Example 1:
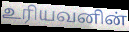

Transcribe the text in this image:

உரியவனின்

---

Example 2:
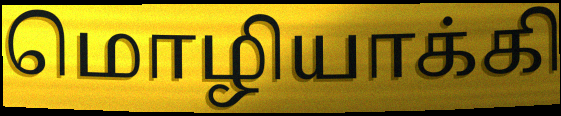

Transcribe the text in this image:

மொழியாக்கி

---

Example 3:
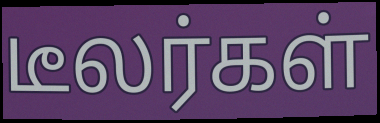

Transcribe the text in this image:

டீலர்கள்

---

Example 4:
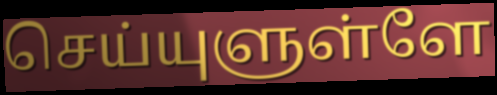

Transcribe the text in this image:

செய்யுளுள்ளே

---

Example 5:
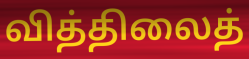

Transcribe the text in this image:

வித்திலைத்